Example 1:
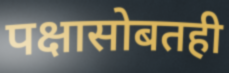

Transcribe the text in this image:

पक्षासोबतही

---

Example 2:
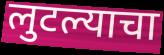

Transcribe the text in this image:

लुटल्याचा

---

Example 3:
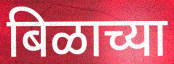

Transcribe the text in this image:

बिळाच्या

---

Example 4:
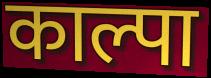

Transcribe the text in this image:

काल्पा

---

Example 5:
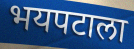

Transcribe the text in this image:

भयपटाला